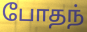
போதந்